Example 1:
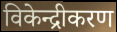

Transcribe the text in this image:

विकेन्द्रीकरण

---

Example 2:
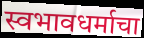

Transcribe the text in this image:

स्वभावधर्माचा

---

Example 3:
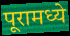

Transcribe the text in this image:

पूरामध्ये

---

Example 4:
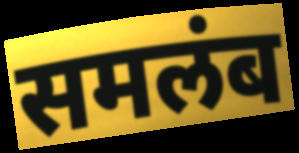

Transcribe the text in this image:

समलंब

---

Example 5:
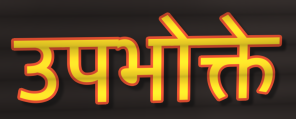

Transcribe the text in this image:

उपभोक्ते